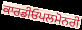
ਕਾਰਡੀਓਪਲਮੋਨਰੀ